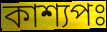
কাশ্যপঃ